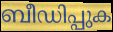
ബീഡിപ്പുക